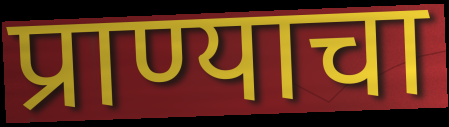
प्राण्याचा